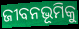
ଜୀବନଭୂମିକୁ